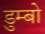
डुम्बो